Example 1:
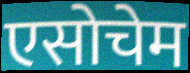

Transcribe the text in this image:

एसोचेम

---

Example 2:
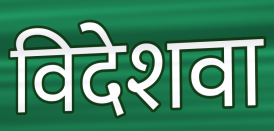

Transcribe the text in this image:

विदेशवा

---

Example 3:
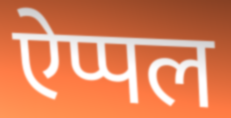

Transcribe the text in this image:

ऐप्पल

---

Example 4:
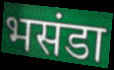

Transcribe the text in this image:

भसंडा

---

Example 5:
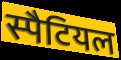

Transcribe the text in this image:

स्पैटियल